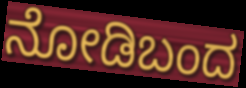
ನೋಡಿಬಂದ